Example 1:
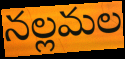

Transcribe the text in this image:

నల్లమల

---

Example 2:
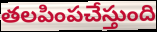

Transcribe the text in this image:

తలపింపచేస్తుంది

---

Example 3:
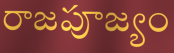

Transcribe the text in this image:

రాజపూజ్యం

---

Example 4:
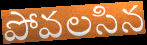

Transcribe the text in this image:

పోవలసిన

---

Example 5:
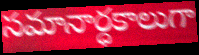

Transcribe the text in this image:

సమానార్ధకాలుగా